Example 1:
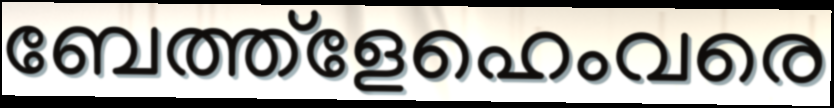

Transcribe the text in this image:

ബേത്ത്ളേഹെംവരെ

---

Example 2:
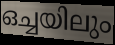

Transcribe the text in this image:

ഒച്ചയിലും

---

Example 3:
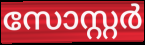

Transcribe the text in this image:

സോസ്റ്റർ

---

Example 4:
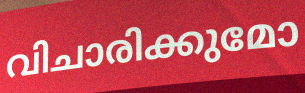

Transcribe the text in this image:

വിചാരിക്കുമോ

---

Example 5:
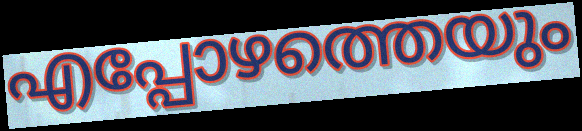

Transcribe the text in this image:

എപ്പോഴത്തെയും